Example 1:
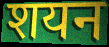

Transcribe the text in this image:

शयन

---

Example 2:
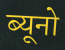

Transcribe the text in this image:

ब्यूनो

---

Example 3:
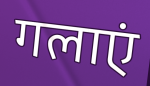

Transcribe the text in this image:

गलाएं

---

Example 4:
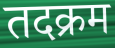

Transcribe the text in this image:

तदक्रम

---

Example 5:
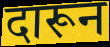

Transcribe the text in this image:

दारून